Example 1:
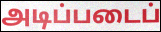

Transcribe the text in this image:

அடிப்படைப்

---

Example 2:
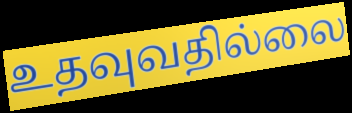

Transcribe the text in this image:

உதவுவதில்லை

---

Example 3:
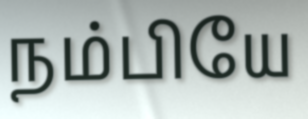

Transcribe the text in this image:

நம்பியே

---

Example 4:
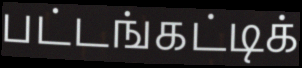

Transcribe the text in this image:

பட்டங்கட்டிக்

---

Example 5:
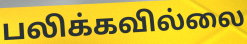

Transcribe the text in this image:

பலிக்கவில்லை